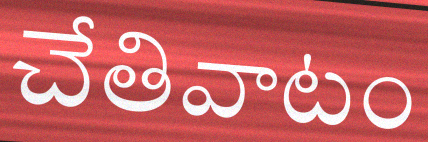
చేతివాటం